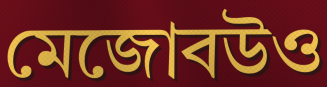
মেজোবউও